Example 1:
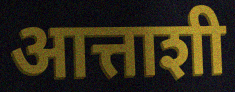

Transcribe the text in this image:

आत्ताशी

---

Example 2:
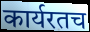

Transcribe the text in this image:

कार्यरतच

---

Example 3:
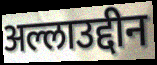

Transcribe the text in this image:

अल्लाउद्दीन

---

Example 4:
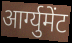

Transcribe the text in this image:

आर्ग्युमेंट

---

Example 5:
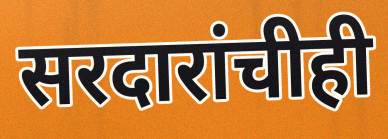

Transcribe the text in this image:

सरदारांचीही